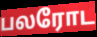
பலரோட